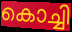
കൊച്ചി